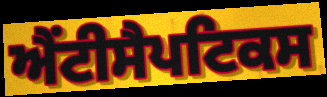
ਐਂਟੀਸੈਪਟਿਕਸ